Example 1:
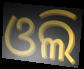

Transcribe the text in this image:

ଓଲି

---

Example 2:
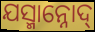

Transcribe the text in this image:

ଯସ୍ମାନ୍ନୋଦ୍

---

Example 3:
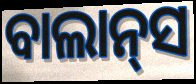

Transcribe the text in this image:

ବାଲାନ୍‌ସ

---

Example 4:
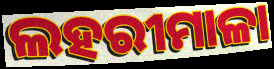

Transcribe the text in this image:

ଲହରୀମାଳା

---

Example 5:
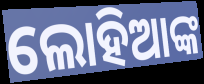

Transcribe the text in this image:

ଲୋହିଆଙ୍କ